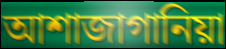
আশাজাগানিয়া